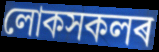
লোকসকলৰ